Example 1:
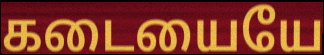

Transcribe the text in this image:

கடையையே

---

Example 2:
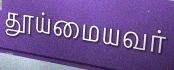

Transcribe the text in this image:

தூய்மையவர்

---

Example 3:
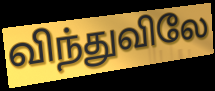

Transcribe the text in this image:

விந்துவிலே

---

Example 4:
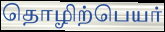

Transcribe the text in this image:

தொழிற்பெயர்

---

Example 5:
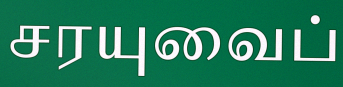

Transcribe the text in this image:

சரயுவைப்